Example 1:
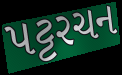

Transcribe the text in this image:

પટ્ટરચન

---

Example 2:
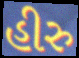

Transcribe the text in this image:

હીરુ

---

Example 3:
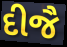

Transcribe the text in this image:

દીજૈ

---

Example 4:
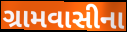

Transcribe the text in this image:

ગ્રામવાસીના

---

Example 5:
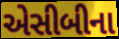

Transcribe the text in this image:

એસીબીના